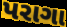
પરાગા